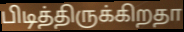
பிடித்திருக்கிறதா